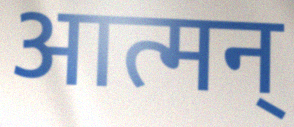
आत्मन्